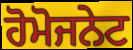
ਹੋਮੋਜਨੇਟ